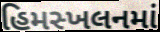
હિમસ્ખલનમાં